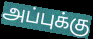
அப்புக்கு